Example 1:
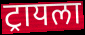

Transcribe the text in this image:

ट्रायला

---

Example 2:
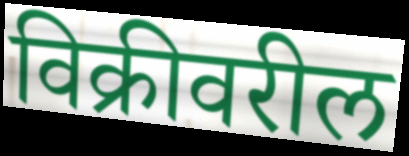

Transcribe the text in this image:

विक्रीवरील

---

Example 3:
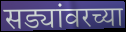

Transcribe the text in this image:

सड्यांवरच्या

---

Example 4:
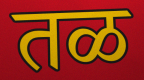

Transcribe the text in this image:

तळ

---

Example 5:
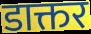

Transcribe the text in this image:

डाक्तर